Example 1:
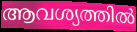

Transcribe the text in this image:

ആവശ്യത്തിൽ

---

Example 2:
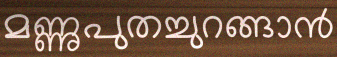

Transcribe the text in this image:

മണ്ണുപുതച്ചുറങ്ങാൻ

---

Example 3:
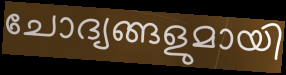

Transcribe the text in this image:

ചോദ്യങ്ങളുമായി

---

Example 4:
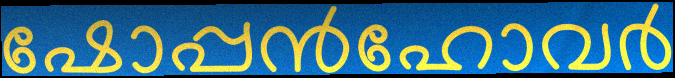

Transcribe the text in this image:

ഷോപ്പൻഹോവർ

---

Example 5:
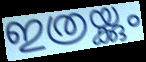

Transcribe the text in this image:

ഇത്രയ്ക്കും